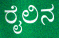
ರೈಲಿನ